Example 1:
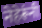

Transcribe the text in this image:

नेहेरूंनी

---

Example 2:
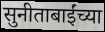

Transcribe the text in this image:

सुनीताबाईंच्या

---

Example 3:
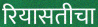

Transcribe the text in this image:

रियासतीचा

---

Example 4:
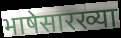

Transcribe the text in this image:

भाषेसारख्या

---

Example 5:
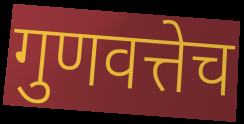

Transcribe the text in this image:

गुणवत्तेच